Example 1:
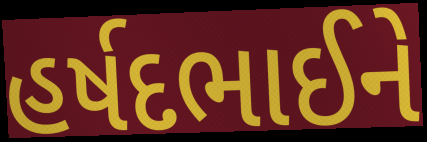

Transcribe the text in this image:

હર્ષદભાઈને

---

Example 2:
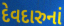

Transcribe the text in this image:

દેવદારુનાં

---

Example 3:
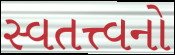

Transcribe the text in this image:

સ્વતત્ત્વનો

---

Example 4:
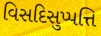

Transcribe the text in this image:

વિસદિસુપ્પત્તિ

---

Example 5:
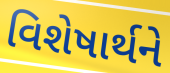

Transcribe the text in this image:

વિશેષાર્થને